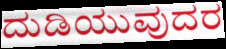
ದುಡಿಯುವುದರ